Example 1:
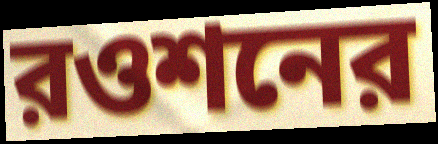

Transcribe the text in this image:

রওশনের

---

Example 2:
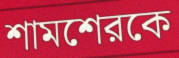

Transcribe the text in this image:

শামশেরকে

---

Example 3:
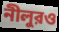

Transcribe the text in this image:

নীলুরও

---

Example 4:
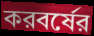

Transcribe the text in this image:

করবর্ষের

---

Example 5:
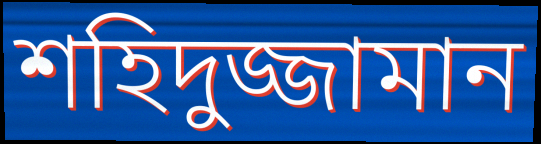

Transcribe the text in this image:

শহিদুজ্জামান